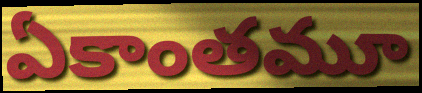
ఏకాంతమూ